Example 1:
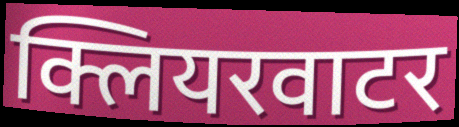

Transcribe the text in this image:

क्लियरवाटर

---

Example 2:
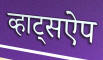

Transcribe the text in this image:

व्हाट्सऐप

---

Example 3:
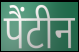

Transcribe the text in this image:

पैंटीन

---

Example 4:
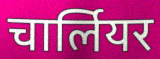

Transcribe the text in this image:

चार्लियर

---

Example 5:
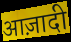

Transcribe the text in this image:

आज़ादी